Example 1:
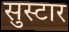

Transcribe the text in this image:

सुस्टार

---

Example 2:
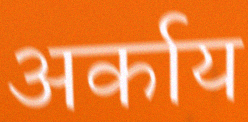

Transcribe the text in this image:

अर्काय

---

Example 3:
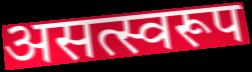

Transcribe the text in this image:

असत्स्वरूप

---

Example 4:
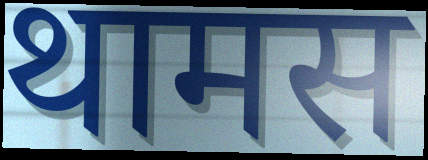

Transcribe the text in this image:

थामस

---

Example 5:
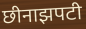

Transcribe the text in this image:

छीनाझपटी